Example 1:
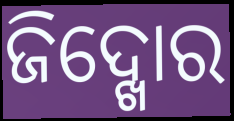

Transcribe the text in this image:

ଜିଦ୍ଖୋର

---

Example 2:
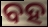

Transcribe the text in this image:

ବହ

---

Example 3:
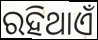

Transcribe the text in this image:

ରହିଥାଏଁ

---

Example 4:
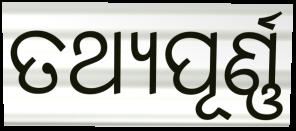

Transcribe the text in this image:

ତଥ୍ୟପୂର୍ଣ୍ଣ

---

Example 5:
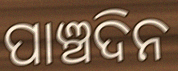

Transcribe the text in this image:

ପାଞ୍ଚଦିନ